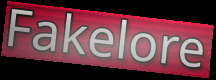
Fakelore